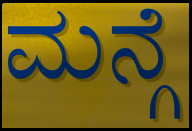
ಮನ್ಗೆ